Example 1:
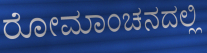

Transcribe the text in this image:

ರೋಮಾಂಚನದಲ್ಲಿ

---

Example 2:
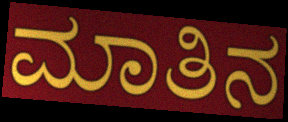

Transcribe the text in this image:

ಮಾತಿನ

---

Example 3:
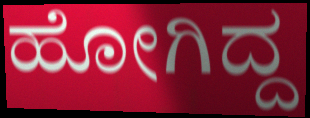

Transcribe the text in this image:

ಹೋಗಿದ್ದ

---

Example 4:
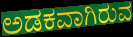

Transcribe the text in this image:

ಅಡಕವಾಗಿರುವ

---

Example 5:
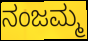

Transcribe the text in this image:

ನಂಜಮ್ಮ